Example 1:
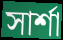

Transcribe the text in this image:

সার্শা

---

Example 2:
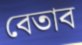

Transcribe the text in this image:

বেতাব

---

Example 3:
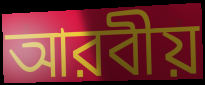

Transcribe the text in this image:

আরবীয়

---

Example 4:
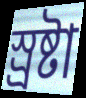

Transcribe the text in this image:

স্র্রষ্টা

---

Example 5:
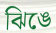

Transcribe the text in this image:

ঝিঙে